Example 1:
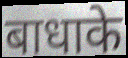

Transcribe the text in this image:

बाधाके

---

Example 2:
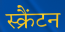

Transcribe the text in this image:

स्क्रैंटन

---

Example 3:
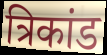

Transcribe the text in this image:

त्रिकांड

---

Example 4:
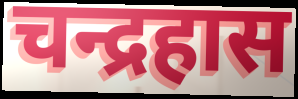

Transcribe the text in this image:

चन्द्रहास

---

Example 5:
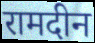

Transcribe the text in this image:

रामदीन